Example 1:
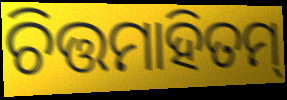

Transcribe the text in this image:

ଚିତ୍ତମାହିତମ୍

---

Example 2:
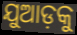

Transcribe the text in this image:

ଯୁଆଡ଼କୁ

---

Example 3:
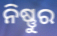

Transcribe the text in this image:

ନିଷ୍ଣୁର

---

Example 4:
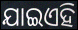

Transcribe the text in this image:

ଯାଇଏହି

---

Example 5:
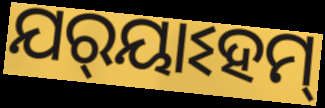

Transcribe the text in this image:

ଯର୍‌ୟାଽହମ୍